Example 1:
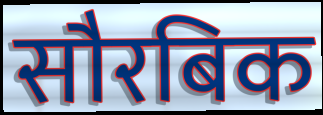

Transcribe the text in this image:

सौरबिक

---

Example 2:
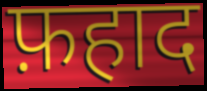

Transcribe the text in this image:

फ़हाद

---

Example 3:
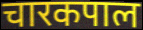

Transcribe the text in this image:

चारकपाल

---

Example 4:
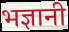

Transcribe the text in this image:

भज्ञानी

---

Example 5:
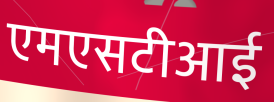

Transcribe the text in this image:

एमएसटीआई